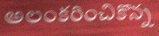
అలంకరించికొన్న